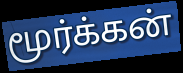
மூர்க்கன்